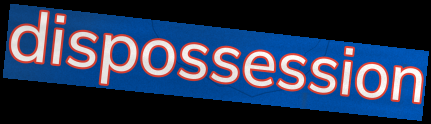
dispossession